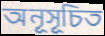
অনূসূচিত